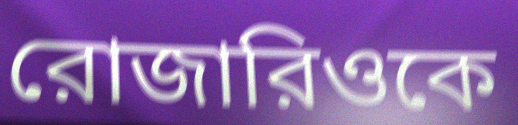
রোজারিওকে